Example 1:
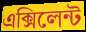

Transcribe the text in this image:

এক্সিলেন্ট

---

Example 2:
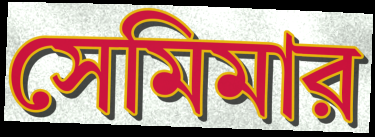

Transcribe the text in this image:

সেমিমার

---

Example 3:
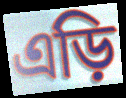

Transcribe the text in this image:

এড়ি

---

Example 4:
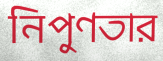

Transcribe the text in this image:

নিপুণতার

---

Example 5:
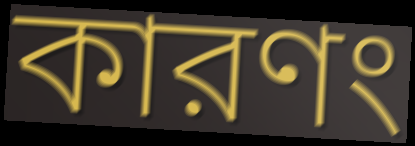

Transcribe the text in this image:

কারণং